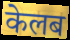
केलब